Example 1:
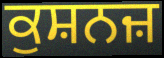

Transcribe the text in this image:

ਕੁਸ਼ਨਜ਼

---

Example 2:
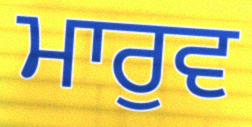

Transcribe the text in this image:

ਮਾਰੁਵ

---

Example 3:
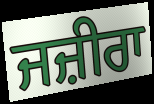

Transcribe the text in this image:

ਜਜ਼ੀਰਾ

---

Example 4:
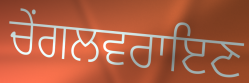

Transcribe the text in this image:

ਚੇਂਗਲਵਰਾਇਣ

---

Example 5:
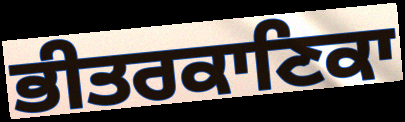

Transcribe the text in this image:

ਭੀਤਰਕਾਣਿਕਾ